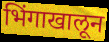
भिंगाखालून